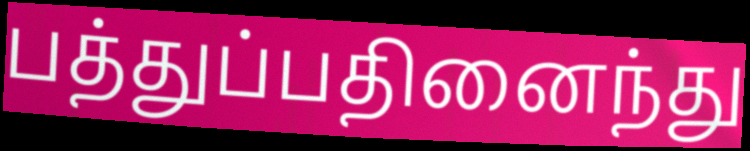
பத்துப்பதினைந்து